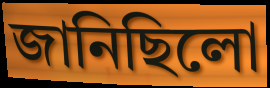
জানিছিলো